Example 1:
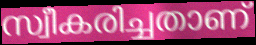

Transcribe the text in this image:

സ്വീകരിച്ചതാണ്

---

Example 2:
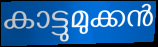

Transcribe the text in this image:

കാട്ടുമുക്കൻ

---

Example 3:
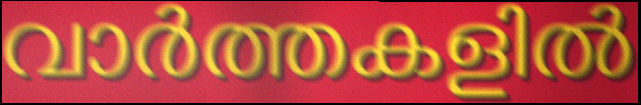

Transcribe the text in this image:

വാർത്തകളിൽ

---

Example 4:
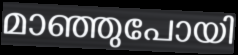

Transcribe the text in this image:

മാഞ്ഞുപോയി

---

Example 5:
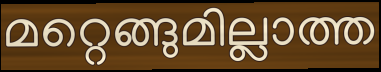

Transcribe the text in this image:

മറ്റെങ്ങുമില്ലാത്ത